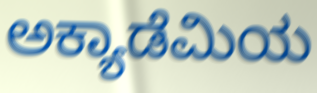
ಅಕ್ಯಾಡೆಮಿಯ